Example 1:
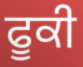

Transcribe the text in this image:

ਫੂਕੀ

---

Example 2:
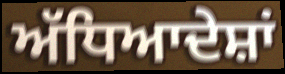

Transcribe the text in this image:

ਅੱਧਿਆਦੇਸ਼ਾਂ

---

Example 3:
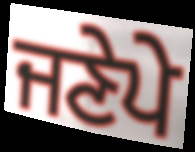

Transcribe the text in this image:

ਜਣੇਪੇ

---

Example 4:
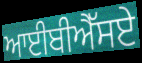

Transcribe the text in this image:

ਆਈਬੀਐੱਸਏ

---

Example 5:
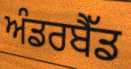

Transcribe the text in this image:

ਅੰਡਰਬੈੱਡ